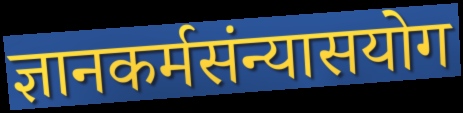
ज्ञानकर्मसंन्यासयोग